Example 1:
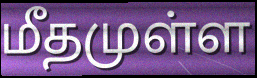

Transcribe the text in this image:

மீதமுள்ள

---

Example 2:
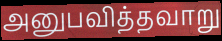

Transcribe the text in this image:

அனுபவித்தவாறு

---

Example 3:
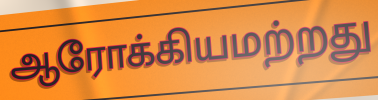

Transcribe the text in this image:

ஆரோக்கியமற்றது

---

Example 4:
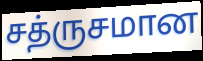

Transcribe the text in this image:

சத்ருசமான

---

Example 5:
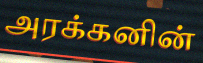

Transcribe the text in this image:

அரக்கனின்